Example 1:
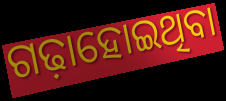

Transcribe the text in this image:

ଗଢ଼ାହୋଇଥିବା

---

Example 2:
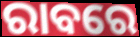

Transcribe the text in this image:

ରାବରେ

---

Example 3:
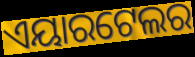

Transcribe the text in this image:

ଏୟାରଟେଲର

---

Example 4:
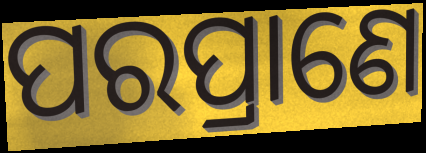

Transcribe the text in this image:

ପରପ୍ରାଣେ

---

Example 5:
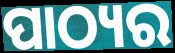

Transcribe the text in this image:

ପାଠ୍ୟର